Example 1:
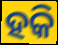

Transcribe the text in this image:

ହକି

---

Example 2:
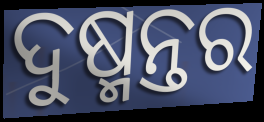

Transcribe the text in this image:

ଦୁଷ୍ମନ୍ତର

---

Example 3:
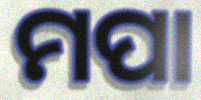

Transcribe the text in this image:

ମପା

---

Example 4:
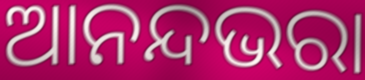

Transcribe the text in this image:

ଆନନ୍ଦଭରା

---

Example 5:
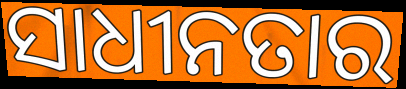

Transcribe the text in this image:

ସାଧୀନତାର